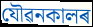
যৌৱনকালৰ